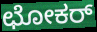
ಛೋಕರ್